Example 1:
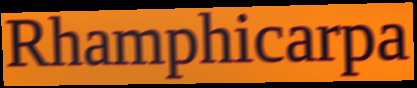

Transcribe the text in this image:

Rhamphicarpa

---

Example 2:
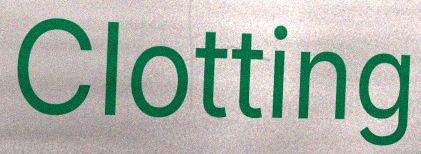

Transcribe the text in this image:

Clotting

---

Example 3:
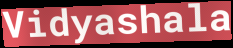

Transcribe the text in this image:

Vidyashala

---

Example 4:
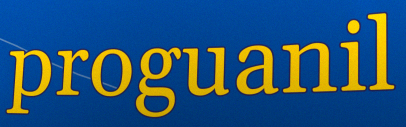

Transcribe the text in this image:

proguanil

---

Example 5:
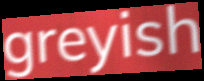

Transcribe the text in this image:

greyish